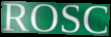
ROSC